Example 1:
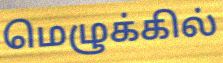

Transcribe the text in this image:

மெழுக்கில்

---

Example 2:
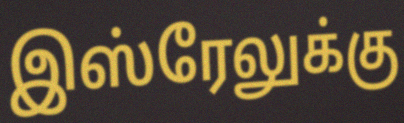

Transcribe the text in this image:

இஸ்ரேலுக்கு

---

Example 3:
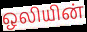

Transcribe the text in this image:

ஒலியின்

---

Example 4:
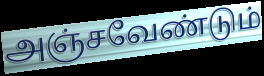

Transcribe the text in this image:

அஞ்சவேண்டும்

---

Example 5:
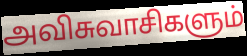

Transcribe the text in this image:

அவிசுவாசிகளும்